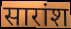
सारांश